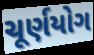
ચૂર્ણયોગ